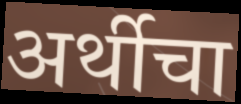
अर्थीचा